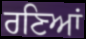
ਰਣਿਆਂ